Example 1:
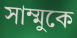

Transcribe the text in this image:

সাম্মুকে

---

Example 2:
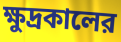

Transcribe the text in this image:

ক্ষুদ্রকালের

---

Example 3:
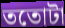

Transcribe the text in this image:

ততোটা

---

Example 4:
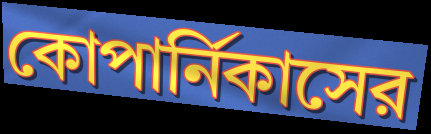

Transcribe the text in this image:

কোপার্নিকাসের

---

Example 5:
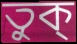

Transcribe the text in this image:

তুক্